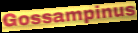
Gossampinus